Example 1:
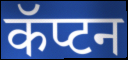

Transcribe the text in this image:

कॅप्टन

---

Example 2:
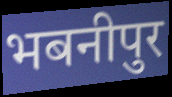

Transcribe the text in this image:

भबनीपुर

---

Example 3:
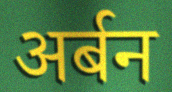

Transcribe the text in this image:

अर्बन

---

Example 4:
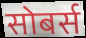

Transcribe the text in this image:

सोबर्स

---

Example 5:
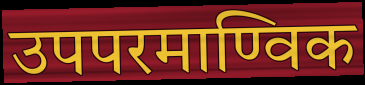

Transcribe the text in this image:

उपपरमाण्विक